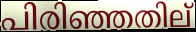
പിരിഞ്ഞതില്